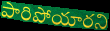
పారిపోయారని